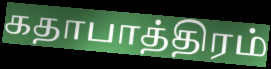
கதாபாத்திரம்